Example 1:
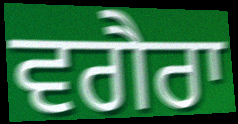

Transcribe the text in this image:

ਵਗੈਰਾ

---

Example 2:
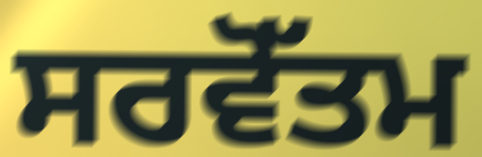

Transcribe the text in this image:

ਸਰਵੋੱਤਮ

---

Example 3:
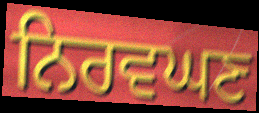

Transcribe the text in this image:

ਨਿਰਵਘਣ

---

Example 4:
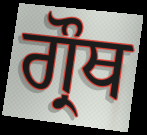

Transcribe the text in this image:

ਗ੍ਰੌਥ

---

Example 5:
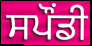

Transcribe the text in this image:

ਸਪੌਂਡੀ